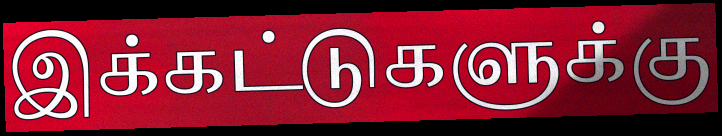
இக்கட்டுகளுக்கு